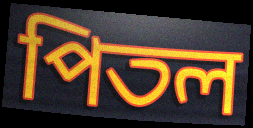
পিতল